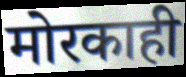
मोरकाही